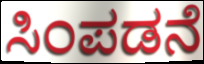
ಸಿಂಪಡನೆ